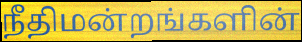
நீதிமன்றங்களின்